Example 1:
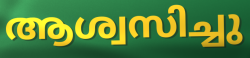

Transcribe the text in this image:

ആശ്വസിച്ചു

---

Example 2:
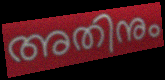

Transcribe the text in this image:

അതിനും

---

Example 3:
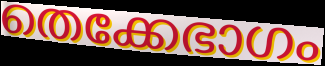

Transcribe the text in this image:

തെക്കേഭാഗം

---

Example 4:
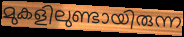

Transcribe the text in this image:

മുകളിലുണ്ടായിരുന്ന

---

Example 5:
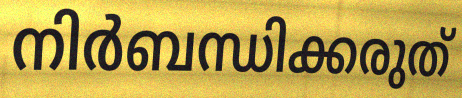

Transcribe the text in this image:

നിർബന്ധിക്കരുത്